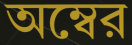
অম্বের